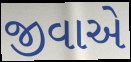
જીવાએ